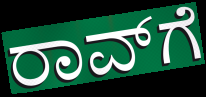
ರಾವ್‌ಗೆ